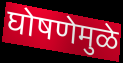
घोषणेमुळे